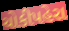
ચોકીપહેરા